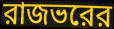
রাজভরের